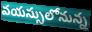
వయస్సులోనున్న